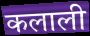
कलाली